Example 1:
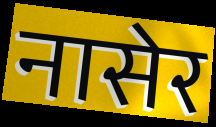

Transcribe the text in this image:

नासेर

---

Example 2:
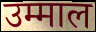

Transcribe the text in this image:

उम्माल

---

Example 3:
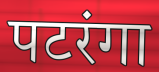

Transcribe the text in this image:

पटरंगा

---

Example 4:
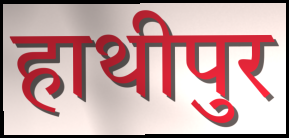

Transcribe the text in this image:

हाथीपुर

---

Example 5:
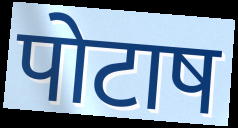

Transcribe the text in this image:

पोटाष